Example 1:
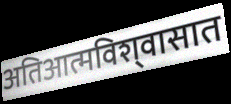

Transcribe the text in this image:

अतिआत्मविश्वासात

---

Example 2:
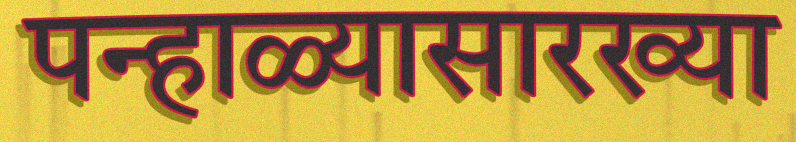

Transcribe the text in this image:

पन्हाळ्यासारख्या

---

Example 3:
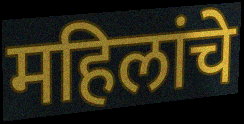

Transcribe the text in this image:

महिलांचे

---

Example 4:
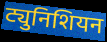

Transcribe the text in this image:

ट्युनिशियन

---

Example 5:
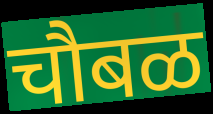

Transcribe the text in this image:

चौबळ